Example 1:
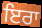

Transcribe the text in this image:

ਇਰਾ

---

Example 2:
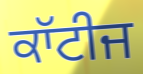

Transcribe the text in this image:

ਕਾੱਟੀਜ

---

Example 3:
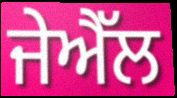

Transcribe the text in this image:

ਜੇਐੱਲ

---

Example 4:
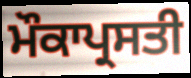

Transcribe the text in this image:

ਮੌਕਾਪ੍ਰਸਤੀ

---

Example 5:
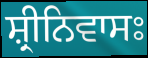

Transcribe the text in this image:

ਸ਼੍ਰੀਨਿਵਾਸਃ